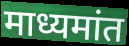
माध्यमांत